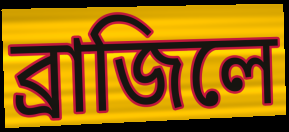
ব্রাজিলে